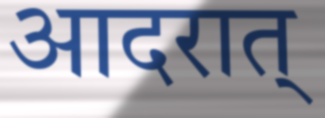
आदरात्